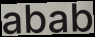
abab